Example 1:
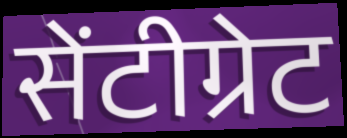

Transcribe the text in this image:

सेंटीग्रेट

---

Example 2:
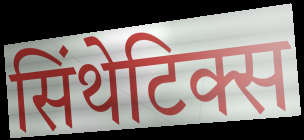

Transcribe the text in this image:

सिंथेटिक्स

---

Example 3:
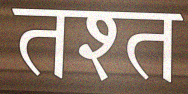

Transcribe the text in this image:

तश्त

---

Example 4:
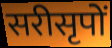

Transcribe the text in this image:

सरीसृपों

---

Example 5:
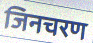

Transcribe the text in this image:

जिनचरण